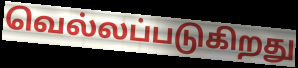
வெல்லப்படுகிறது